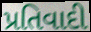
પ્રતિવાદી